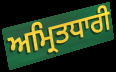
ਅਮ੍ਰਿਤਧਾਰੀ